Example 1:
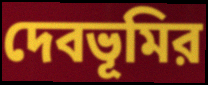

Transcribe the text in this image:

দেবভূমির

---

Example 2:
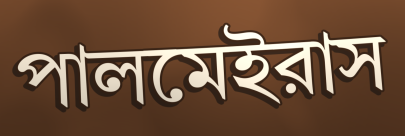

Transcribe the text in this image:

পালমেইরাস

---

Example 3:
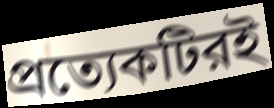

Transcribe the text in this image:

প্রত্যেকটিরই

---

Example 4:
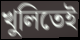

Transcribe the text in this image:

খুলিতেই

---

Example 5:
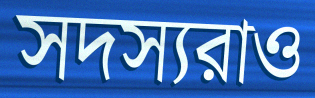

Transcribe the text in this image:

সদস্যরাও